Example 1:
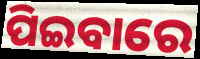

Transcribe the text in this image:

ପିଇବାରେ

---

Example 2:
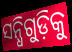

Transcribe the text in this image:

ସନ୍ଧିଗୁଡ଼ିକୁ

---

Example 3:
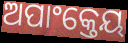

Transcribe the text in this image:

ଅପାଂକ୍ତେୟ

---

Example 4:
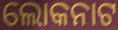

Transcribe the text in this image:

ଲୋକନାଟ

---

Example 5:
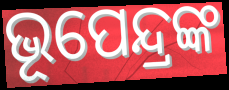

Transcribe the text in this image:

ଭୂପେନ୍ଦ୍ରଙ୍କ